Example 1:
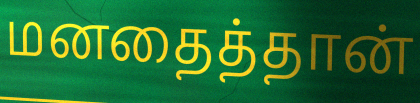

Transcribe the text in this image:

மனதைத்தான்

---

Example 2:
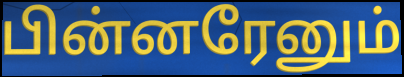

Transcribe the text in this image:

பின்னரேனும்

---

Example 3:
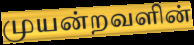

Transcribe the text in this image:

முயன்றவளின்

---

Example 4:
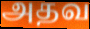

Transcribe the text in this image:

அதவ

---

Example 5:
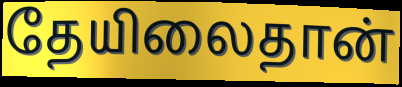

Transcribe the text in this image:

தேயிலைதான்